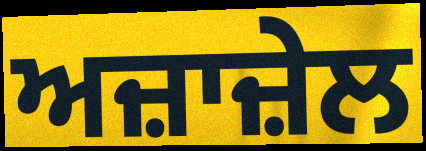
ਅਜ਼ਾਜ਼ੇਲ